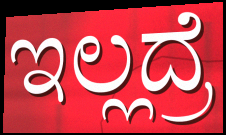
ಇಲ್ಲದ್ರೆ